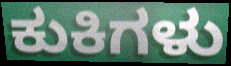
ಕುಕಿಗಳು